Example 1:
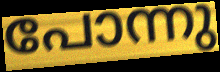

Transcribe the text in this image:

പോന്നു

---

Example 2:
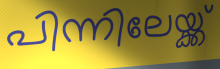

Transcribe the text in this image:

പിന്നിലേയ്ക്ക്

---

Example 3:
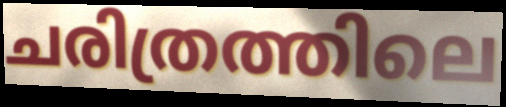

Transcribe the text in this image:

ചരിത്രത്തിലെ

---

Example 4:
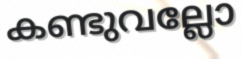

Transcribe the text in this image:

കണ്ടുവല്ലോ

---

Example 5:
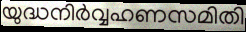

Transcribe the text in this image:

യുദ്ധനിർവ്വഹണസമിതി